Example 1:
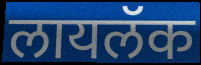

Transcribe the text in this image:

लायलॅक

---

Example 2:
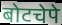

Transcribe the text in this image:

बोटचेपे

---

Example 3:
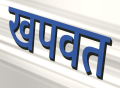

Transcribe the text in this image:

खपवत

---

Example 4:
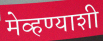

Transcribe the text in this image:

मेव्हण्याशी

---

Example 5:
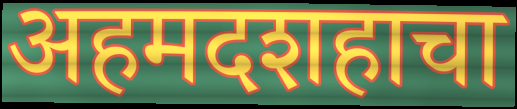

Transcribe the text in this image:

अहमदशहाचा